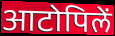
आटोपिलें